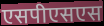
एसपीएसएस